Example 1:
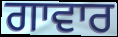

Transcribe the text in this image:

ਗਾਵਾਰ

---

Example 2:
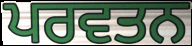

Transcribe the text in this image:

ਪਰਵਤਨ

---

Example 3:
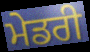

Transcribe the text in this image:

ਮੇਡਰੀ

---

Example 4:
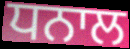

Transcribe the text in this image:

ਧਨਾਲ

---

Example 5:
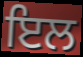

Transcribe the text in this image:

ਇਲ